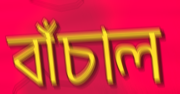
বাঁচাল